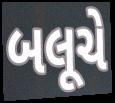
બલૂચે